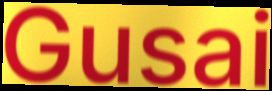
Gusai